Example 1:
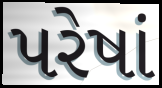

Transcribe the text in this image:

પરેષાં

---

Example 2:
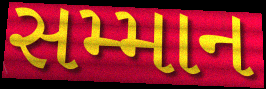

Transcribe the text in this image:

સમ્માન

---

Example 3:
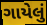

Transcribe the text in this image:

ગાયેલું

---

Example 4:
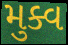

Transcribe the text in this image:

મુક્વ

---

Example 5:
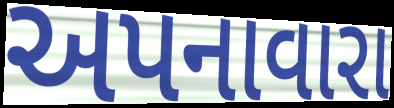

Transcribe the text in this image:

અપનાવારા